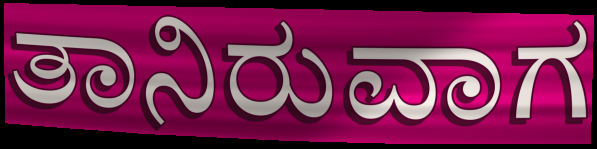
ತಾನಿರುವಾಗ